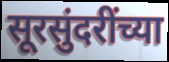
सूरसुंदरींच्या